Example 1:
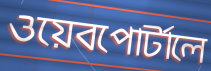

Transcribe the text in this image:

ওয়েবপোর্টালে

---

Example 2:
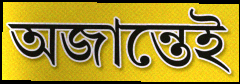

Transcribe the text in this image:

অজান্তেই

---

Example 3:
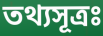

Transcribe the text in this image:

তথ্যসূত্রঃ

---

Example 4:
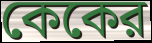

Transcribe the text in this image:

কেকের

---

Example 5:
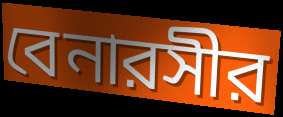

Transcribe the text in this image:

বেনারসীর